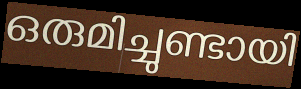
ഒരുമിച്ചുണ്ടായി